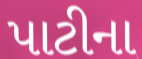
પાટીના